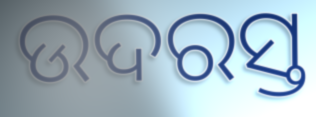
ଉଦରସ୍ତ